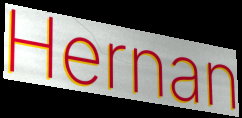
Hernan